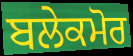
ਬਲੇਕਮੋਰ